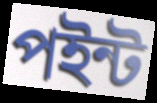
পইন্ট